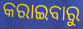
କରାଇବାରୁ